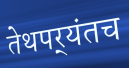
तेथपर्यंतच